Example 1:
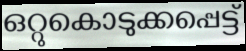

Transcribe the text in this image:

ഒറ്റുകൊടുക്കപ്പെട്ട്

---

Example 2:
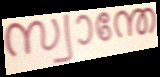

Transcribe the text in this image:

സ്വാന്തേ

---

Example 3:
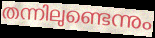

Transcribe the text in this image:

തന്നിലുണ്ടെന്നും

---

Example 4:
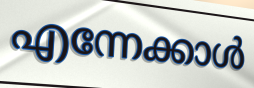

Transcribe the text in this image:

എന്നേക്കാൾ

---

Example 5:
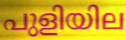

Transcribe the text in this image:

പുളിയില